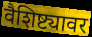
वैशिष्ट्यावर